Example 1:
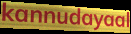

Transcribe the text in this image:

kannudayaal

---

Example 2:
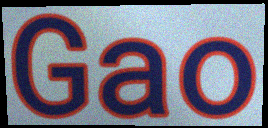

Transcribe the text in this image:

Gao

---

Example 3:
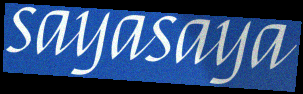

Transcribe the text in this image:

sayasaya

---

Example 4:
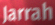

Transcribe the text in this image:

Jarrah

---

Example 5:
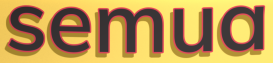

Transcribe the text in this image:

semua